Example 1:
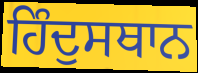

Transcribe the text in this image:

ਹਿੰਦੁਸਥਾਨ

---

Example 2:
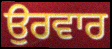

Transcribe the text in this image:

ਉਰਵਾਰ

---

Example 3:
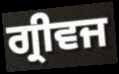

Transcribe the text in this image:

ਗ੍ਰੀਵਜ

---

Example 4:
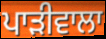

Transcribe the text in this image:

ਪਾੜੀਵਾਲਾ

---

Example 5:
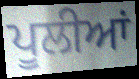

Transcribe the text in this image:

ਪੂਲੀਆਂ